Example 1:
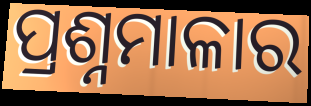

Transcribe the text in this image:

ପ୍ରଶ୍ନମାଳାର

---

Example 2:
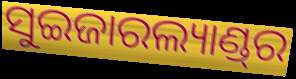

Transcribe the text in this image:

ସୁଇଜାରଲ୍ୟାଣ୍ଡ୍‌ର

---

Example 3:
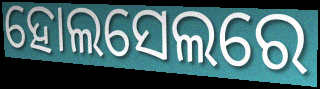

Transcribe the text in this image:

ହୋଲସେଲରେ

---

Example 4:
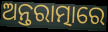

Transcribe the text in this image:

ଅନ୍ତରାତ୍ମାରେ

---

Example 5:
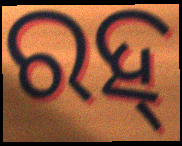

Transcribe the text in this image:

ରହ୍